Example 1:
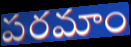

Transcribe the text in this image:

పరమాం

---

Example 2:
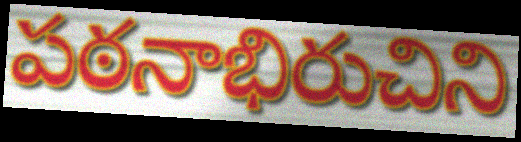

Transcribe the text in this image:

పఠనాభిరుచిని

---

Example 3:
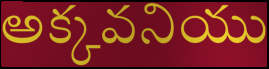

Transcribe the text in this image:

అక్కవనియు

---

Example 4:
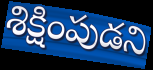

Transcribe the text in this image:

శిక్షింపుడని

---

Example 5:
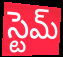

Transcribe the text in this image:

స్టెమ్